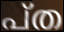
പ്‌ത